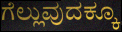
ಗೆಲ್ಲುವುದಕ್ಕೂ